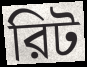
রিট